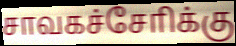
சாவகச்சேரிக்கு